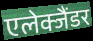
एलेक्जैंडर